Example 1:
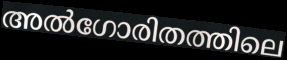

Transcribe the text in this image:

അൽഗോരിതത്തിലെ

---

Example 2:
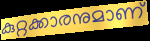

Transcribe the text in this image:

കുറ്റക്കാരനുമാണ്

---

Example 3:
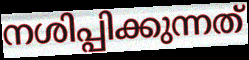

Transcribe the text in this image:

നശിപ്പിക്കുന്നത്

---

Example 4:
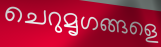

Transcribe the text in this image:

ചെറുമൃഗങ്ങളെ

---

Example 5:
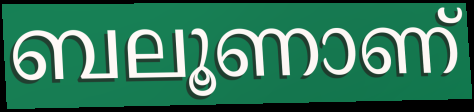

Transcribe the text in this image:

ബലൂണാണ്